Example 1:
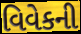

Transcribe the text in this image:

વિવેકની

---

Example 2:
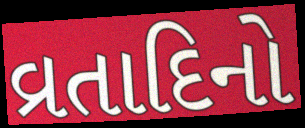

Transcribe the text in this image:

વ્રતાદિનો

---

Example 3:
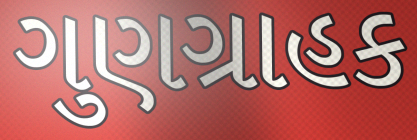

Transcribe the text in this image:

ગુણગ્રાહક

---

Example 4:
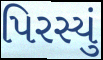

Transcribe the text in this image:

પિરસ્યું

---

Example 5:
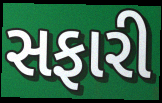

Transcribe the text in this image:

સફારી